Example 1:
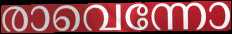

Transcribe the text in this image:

രാവെന്നോ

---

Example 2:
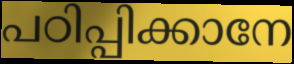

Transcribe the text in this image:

പഠിപ്പിക്കാനേ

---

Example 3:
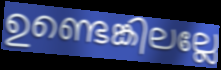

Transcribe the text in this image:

ഉണ്ടെങ്കിലല്ലേ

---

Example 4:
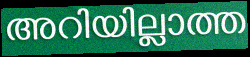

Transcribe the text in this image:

അറിയില്ലാത്ത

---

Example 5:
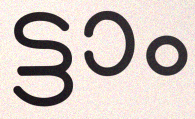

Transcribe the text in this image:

ട്ടാം